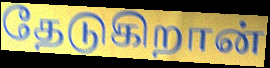
தேடுகிறான்